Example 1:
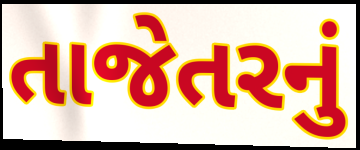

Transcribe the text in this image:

તાજેતરનું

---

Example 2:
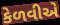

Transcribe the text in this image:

કેળવીએ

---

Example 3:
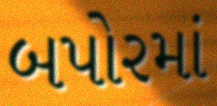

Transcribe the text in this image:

બપોરમાં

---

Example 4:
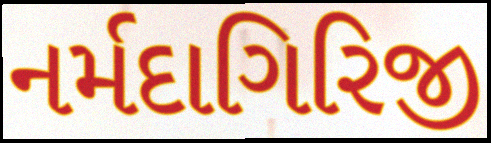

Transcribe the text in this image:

નર્મદાગિરિજી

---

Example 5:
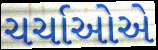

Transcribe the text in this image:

ચર્ચાઓએ